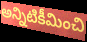
అన్నిటికీమించి